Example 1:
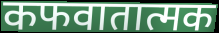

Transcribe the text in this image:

कफवातात्मक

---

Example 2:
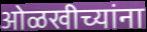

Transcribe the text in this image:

ओळखीच्यांना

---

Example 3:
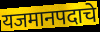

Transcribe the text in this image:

यजमानपदाचे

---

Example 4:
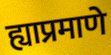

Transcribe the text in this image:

ह्याप्रमाणे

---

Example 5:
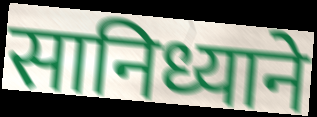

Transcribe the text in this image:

सानिध्याने